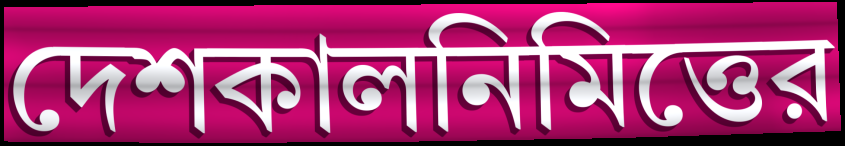
দেশকালনিমিত্তের